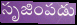
సృజింపడు